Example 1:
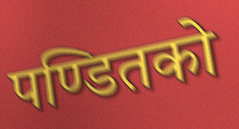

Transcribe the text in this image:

पण्डितको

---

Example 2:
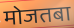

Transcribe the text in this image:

मोजतबा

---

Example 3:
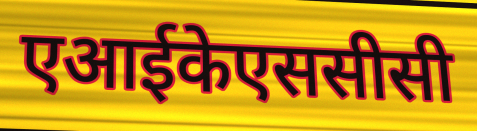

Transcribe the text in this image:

एआईकेएससीसी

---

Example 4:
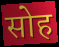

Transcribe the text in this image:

सोह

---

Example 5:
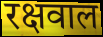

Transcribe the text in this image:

रक्षवाल